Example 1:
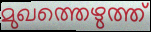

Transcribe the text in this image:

മുഖത്തെഴുത്ത്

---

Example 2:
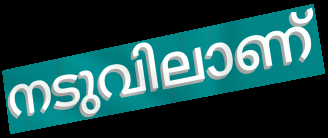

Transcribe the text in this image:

നടുവിലാണ്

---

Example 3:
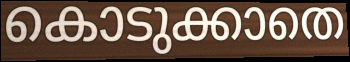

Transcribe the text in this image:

കൊടുക്കാതെ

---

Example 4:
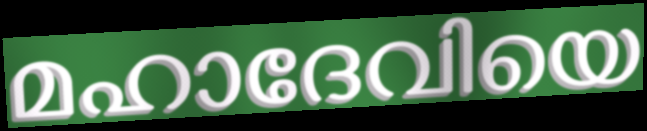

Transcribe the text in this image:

മഹാദേവിയെ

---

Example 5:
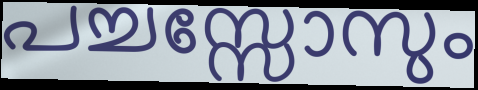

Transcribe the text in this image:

പച്ചസ്സോസും